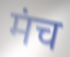
मंच